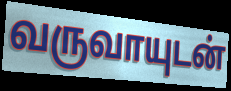
வருவாயுடன்